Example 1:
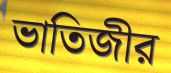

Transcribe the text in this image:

ভাতিজীর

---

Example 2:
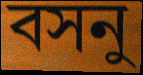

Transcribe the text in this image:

বসনু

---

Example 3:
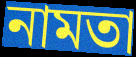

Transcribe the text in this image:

নামতা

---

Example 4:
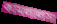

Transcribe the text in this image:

কামলালসা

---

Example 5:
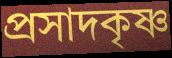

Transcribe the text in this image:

প্রসাদকৃষ্ণ